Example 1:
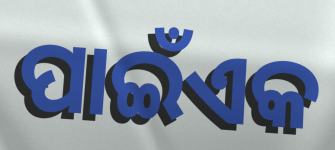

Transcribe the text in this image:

ପାଇଁଏକ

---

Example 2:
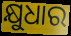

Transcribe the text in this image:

କ୍ଷୁଧାର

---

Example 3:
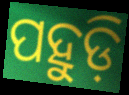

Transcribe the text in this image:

ପହୁଡ଼ି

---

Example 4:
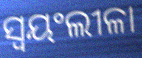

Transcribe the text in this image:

ସ୍ବୟଂଲୀଳା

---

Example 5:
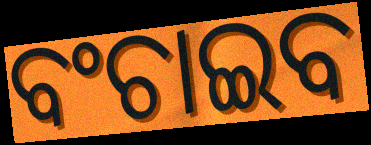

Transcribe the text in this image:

ବଂଚାଇବ